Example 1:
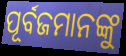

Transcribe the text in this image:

ପୂର୍ବଜମାନଙ୍କୁ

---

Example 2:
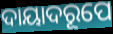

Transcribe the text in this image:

ଦାୟାଦରୂପେ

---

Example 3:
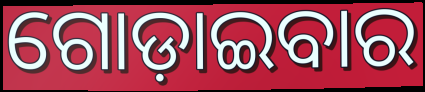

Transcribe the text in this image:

ଗୋଡ଼ାଇବାର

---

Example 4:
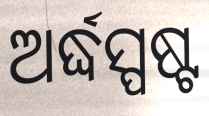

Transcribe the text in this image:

ଅର୍ଦ୍ଧସ୍ପଷ୍ଟ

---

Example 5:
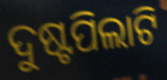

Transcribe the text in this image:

ଦୁଷ୍ଟପିଲାଟି